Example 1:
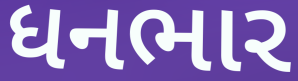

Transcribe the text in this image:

ધનભાર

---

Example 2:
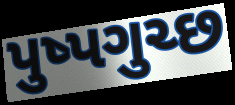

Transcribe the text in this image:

પુષ્પગુચ્છ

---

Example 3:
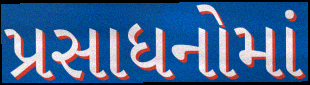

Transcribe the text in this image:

પ્રસાધનોમાં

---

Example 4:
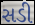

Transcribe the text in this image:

સડી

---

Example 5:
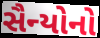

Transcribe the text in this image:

સૈન્યોનો